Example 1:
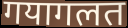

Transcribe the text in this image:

गयागलत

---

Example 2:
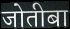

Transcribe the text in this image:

जोतीबा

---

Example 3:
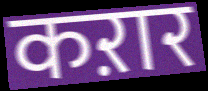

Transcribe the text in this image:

कऱार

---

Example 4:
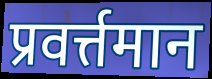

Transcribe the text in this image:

प्रवर्त्तमान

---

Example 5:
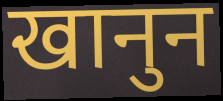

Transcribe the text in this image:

खानुन